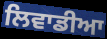
ਲਿਵਾਡੀਆ